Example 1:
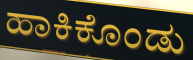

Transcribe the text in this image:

ಹಾಕಿಕೊಂಡು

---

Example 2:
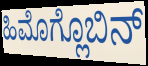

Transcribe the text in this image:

ಹಿಮೊಗ್ಲೊಬಿನ್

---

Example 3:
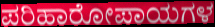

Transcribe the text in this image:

ಪರಿಹಾರೋಪಾಯಗಳ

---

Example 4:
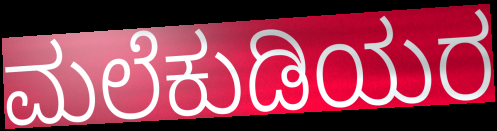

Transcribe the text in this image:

ಮಲೆಕುಡಿಯರ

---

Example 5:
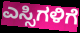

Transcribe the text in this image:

ಎಸ್ಸಿಗಳಿಗೆ